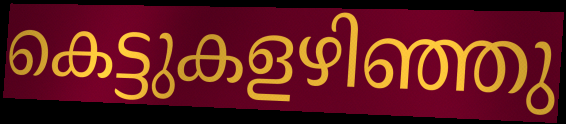
കെട്ടുകളഴിഞ്ഞു